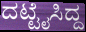
ದಟ್ಟೈಸಿದ್ದ